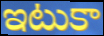
ఇటుకా